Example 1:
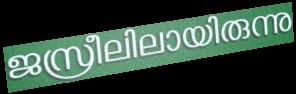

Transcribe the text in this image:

ജസ്രീലിലായിരുന്നു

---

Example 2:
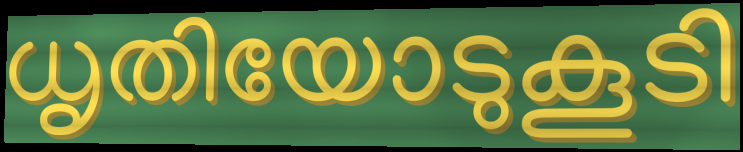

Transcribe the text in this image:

ധൃതിയോടുകൂടി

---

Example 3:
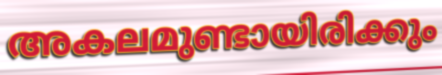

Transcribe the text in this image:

അകലമുണ്ടായിരിക്കും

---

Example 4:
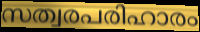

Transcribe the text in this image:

സത്വരപരിഹാരം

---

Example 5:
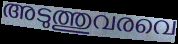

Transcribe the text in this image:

അടുത്തുവരവെ